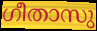
ഗീതാസു